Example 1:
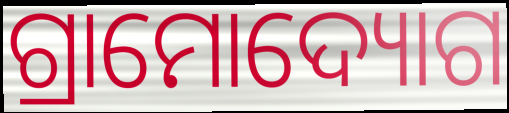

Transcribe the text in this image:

ଗ୍ରାମୋଦ୍ୟୋଗ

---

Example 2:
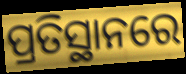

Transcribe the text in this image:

ପ୍ରତିସ୍ଥାନରେ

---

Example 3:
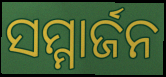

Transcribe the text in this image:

ସମ୍ମାର୍ଜନ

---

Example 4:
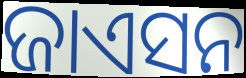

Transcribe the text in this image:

ଜାଏସନ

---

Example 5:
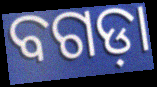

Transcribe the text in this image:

ବଗଡ଼ା